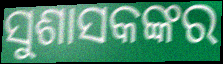
ସୁଶାସକଙ୍କର